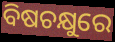
ବିଷଚକ୍ଷୁରେ